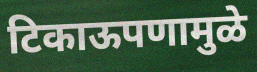
टिकाऊपणामुळे